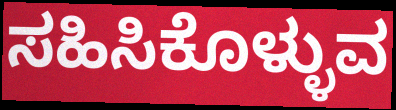
ಸಹಿಸಿಕೊಳ್ಳುವ